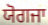
ਯੋਗਜਾ